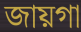
জায়গা